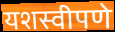
यशस्वीपणे